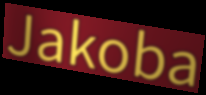
Jakoba